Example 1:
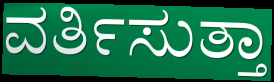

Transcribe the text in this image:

ವರ್ತಿಸುತ್ತಾ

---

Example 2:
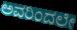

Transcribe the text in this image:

ಅವರಿಂದಲೇ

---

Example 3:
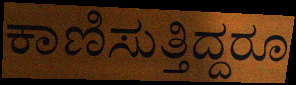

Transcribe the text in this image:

ಕಾಣಿಸುತ್ತಿದ್ದರೂ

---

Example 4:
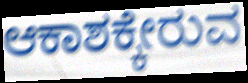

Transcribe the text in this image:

ಆಕಾಶಕ್ಕೇರುವ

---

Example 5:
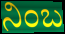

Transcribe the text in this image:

ನಿಂಬ